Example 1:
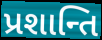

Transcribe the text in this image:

પ્રશાન્તિ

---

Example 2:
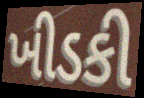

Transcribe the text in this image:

ખીડકી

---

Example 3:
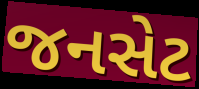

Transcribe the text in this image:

જનસેટ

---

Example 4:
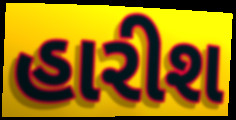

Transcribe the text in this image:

હારીશ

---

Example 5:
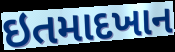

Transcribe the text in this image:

ઇતમાદખાન